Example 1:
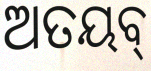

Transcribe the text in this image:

ଅତୟବ୍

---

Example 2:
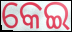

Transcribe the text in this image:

କେଇ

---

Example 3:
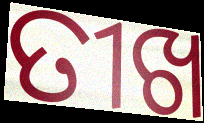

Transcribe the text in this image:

ତୀଖ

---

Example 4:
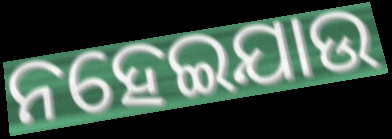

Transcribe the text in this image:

ନହେଇଯାଉ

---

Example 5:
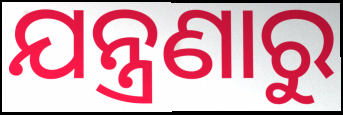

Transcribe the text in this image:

ଯନ୍ତ୍ରଣାରୁ